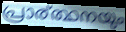
പ്രാര്ത്ഥനയും